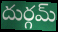
దుర్గమ్